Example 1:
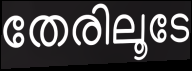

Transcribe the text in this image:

തേരിലൂടേ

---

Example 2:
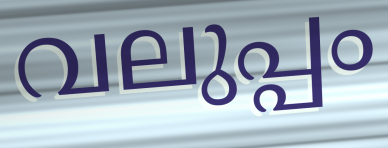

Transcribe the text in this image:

വലുപ്പം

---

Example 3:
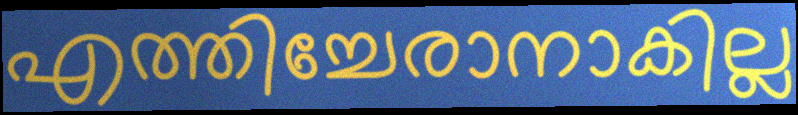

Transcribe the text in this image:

എത്തിച്ചേരാനാകില്ല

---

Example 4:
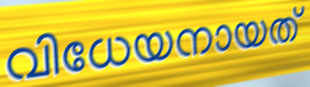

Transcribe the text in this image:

വിധേയനായത്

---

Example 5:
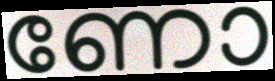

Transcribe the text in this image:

ണോ